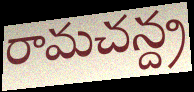
రామచన్ద్ర